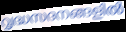
വൃദ്ധസദനങ്ങളിൽ